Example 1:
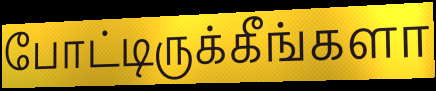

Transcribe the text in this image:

போட்டிருக்கீங்களா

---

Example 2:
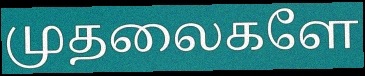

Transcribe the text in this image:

முதலைகளே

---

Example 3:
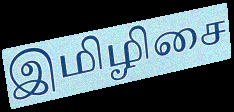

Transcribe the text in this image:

இமிழிசை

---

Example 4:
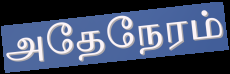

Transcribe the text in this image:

அதேநேரம்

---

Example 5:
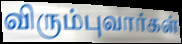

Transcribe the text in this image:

விரும்புவார்கள்